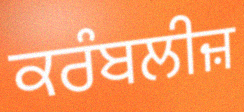
ਕਰੰਬਲੀਜ਼